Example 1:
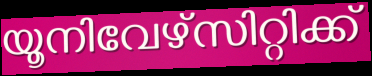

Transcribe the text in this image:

യൂനിവേഴ്സിറ്റിക്ക്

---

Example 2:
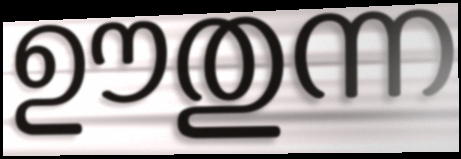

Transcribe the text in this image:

ഊതുന്ന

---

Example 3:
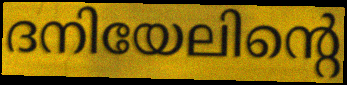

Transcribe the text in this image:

ദനിയേലിന്റെ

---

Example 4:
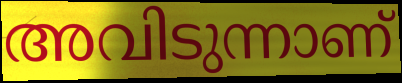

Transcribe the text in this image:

അവിടുന്നാണ്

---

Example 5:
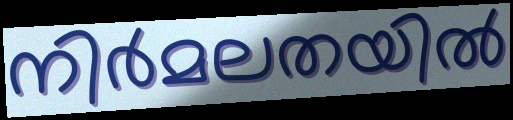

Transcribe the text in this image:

നിർമലതയിൽ